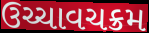
ઉચ્ચાવચક્રમ